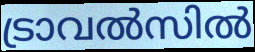
ട്രാവൽസിൽ